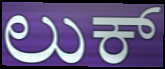
ಲುಕ್